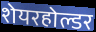
शेयरहोल्डर